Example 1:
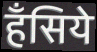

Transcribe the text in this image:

हँसिये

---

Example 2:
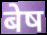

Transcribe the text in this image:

बेष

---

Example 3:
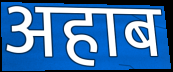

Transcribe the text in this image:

अहाब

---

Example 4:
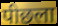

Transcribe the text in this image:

पीछला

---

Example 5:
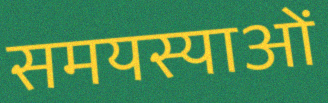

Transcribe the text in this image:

समयस्याओं